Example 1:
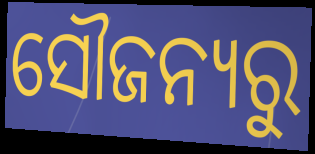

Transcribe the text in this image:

ସୌଜନ୍ୟରୁ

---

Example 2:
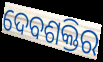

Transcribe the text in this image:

ଦେବଶକ୍ତିର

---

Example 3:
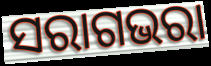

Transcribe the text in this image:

ସରାଗଭରା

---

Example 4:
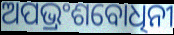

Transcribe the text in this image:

ଅପଭ୍ରଂଶବୋଧିନୀ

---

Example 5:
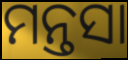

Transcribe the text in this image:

ମନ୍ତସା